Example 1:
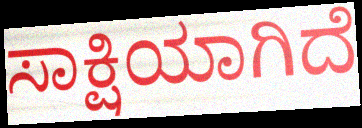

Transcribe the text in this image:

ಸಾಕ್ಷಿಯಾಗಿದೆ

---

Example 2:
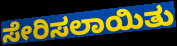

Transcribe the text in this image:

ಸೇರಿಸಲಾಯಿತು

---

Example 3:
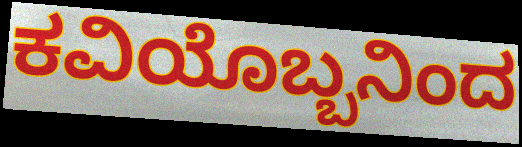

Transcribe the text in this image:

ಕವಿಯೊಬ್ಬನಿಂದ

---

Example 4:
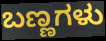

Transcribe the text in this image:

ಬಣ್ಣಗಳು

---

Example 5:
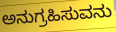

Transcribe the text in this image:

ಅನುಗ್ರಹಿಸುವನು